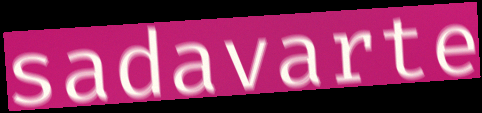
sadavarte